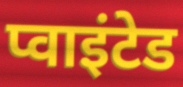
प्वाइंटेड